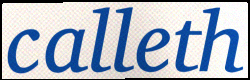
calleth